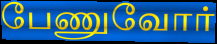
பேணுவோர்